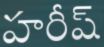
హరీష్